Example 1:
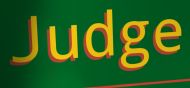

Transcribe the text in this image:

Judge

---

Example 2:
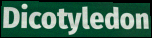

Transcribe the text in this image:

Dicotyledon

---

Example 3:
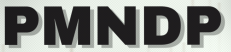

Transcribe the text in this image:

PMNDP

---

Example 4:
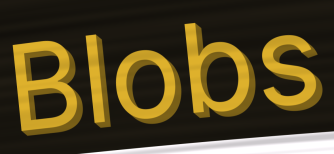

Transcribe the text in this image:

Blobs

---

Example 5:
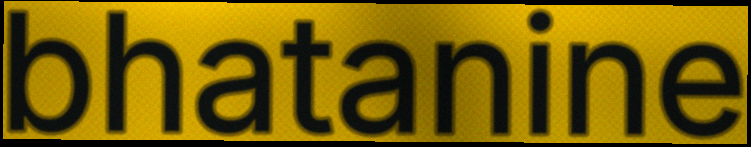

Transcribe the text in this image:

bhatanine